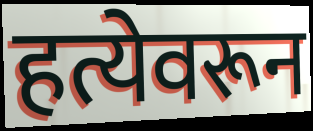
हत्येवरून